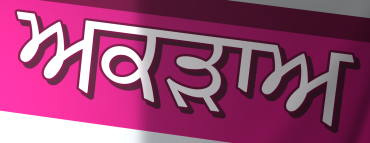
ਅਕੜਾਅ